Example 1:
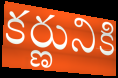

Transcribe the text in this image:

కర్ణునికి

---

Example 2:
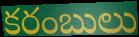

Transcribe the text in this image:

కరంబులు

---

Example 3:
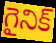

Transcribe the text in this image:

గైనిక్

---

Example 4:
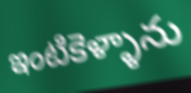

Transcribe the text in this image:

ఇంటికెళ్ళాను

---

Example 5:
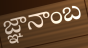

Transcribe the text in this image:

జ్ఞానాంబ